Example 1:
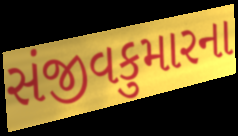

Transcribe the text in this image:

સંજીવકુમારના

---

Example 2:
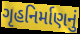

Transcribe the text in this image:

ગૃહનિર્માણનું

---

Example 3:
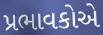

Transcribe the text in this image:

પ્રભાવકોએ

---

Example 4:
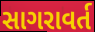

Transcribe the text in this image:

સાગરાવર્ત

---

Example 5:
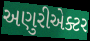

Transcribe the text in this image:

અણુરીએક્ટર